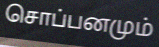
சொப்பனமும்